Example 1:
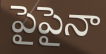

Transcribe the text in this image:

పైపైనా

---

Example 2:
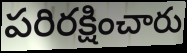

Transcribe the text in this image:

పరిరక్షించారు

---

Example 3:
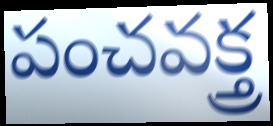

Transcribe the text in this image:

పంచవక్త్ర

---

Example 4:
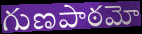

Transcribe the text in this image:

గుణపాఠమో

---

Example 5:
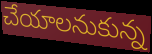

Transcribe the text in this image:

చేయాలనుకున్న